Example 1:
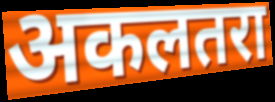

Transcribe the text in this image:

अकलतरा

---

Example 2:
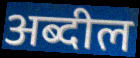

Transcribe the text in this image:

अब्दील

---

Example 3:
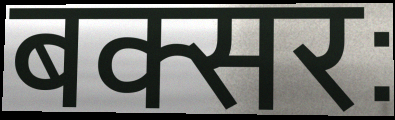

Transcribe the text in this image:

बक्सरः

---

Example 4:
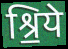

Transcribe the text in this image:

श्रि॒ये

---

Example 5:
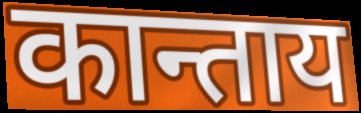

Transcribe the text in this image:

कान्ताय